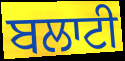
ਬਲਾਟੀ